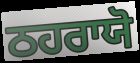
ਠਹਰਾਯੋ